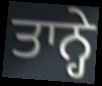
ਤਾਨ੍ਹੇ